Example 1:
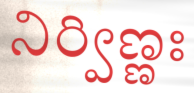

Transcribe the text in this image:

నిర్విణ్ణః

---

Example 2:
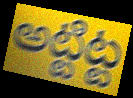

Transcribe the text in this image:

అట్టిట్ట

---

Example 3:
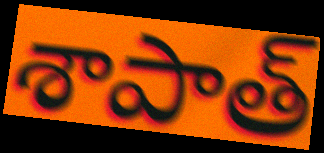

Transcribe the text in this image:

శాపాత్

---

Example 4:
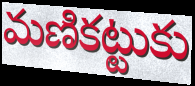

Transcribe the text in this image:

మణికట్టుకు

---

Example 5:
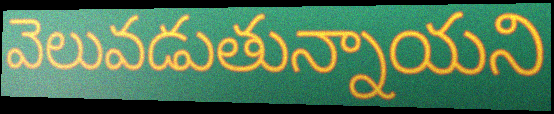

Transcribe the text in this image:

వెలువడుతున్నాయని